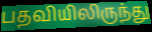
பதவியிலிருந்து